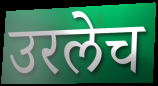
उरलेच